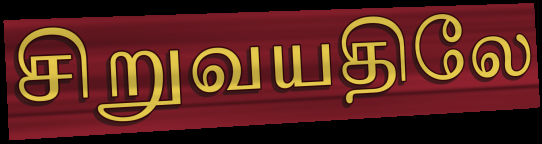
சிறுவயதிலே